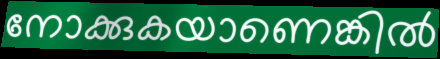
നോക്കുകയാണെങ്കിൽ